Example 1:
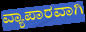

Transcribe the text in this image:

ವ್ಯಾಪಾರವಾಗಿ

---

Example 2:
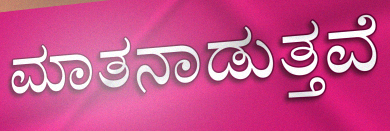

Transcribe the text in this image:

ಮಾತನಾಡುತ್ತವೆ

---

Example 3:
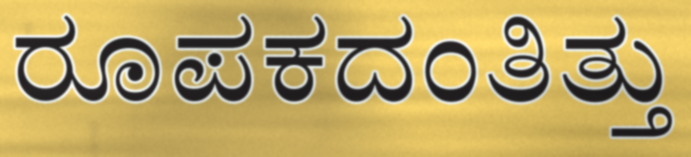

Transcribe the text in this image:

ರೂಪಕದಂತಿತ್ತು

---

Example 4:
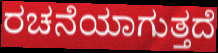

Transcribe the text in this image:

ರಚನೆಯಾಗುತ್ತದೆ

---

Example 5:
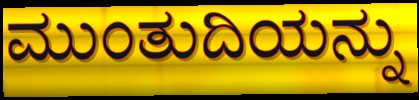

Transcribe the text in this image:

ಮುಂತುದಿಯನ್ನು